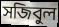
সজিবুল